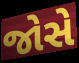
જોસે